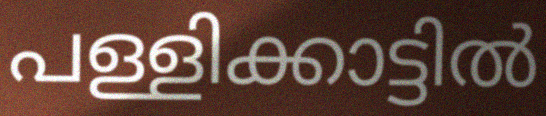
പള്ളിക്കാട്ടിൽ